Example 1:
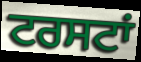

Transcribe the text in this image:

ਟਰਸਟਾਂ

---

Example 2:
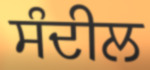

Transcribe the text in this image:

ਸੰਦੀਲ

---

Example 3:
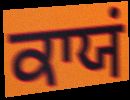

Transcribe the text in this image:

ਕਾਯਂ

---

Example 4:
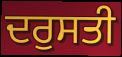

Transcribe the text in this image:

ਦਰੁਸਤੀ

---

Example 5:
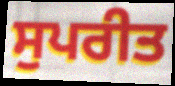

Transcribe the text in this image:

ਸੁਪਰੀਤ